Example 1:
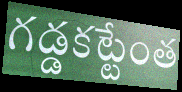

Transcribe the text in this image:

గడ్డకట్టేంత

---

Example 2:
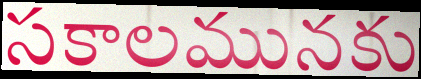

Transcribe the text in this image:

సకాలమునకు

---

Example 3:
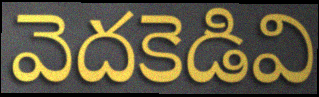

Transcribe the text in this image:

వెదకెడివి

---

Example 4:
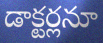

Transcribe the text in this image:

డాక్టర్లనూ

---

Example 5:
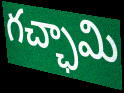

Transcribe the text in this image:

గచ్ఛామి